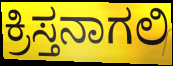
ಕ್ರಿಸ್ತನಾಗಲಿ